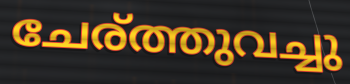
ചേര്ത്തുവച്ചു